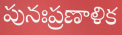
పునఃప్రణాళిక